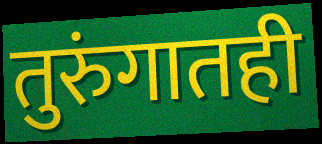
तुरुंगातही